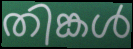
തിങ്കൾ